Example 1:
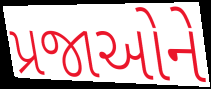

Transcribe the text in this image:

પ્રજાઓને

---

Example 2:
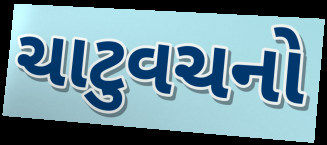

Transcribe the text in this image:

ચાટુવચનો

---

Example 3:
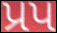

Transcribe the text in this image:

પ્રપ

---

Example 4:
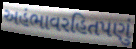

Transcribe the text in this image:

અહંભાવરહિતપણું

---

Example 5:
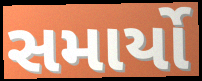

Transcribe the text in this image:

સમાર્યો